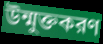
উন্মুক্তকরণ